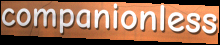
companionless